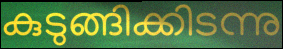
കുടുങ്ങിക്കിടന്നു